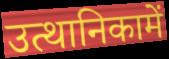
उत्थानिकामें